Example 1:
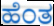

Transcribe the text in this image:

ಹೆಂತ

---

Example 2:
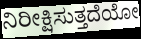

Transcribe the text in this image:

ನಿರೀಕ್ಷಿಸುತ್ತದೆಯೋ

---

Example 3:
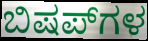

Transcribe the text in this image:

ಬಿಷಪ್‌ಗಳ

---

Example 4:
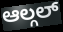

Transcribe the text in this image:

ಆಲ್ಗಲ್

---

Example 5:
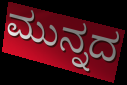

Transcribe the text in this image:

ಮುನ್ನದ